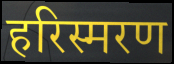
हरिस्मरण